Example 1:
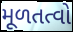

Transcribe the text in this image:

મૂળતત્વો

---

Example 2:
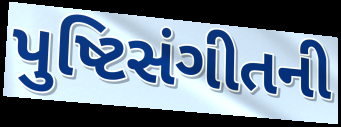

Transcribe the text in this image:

પુષ્ટિસંગીતની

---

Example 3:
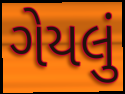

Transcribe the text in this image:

ગેયલું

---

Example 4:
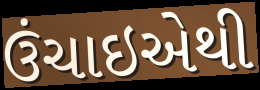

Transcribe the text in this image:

ઉંચાઇએથી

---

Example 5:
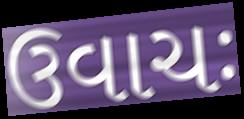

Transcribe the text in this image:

ઉવાચઃ